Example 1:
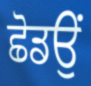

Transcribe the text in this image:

ਛੋਡਉਂ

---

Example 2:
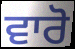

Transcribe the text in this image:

ਵਾਰੋ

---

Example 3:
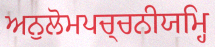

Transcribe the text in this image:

ਅਨੁਲੋਮਪਚ੍ਚਨੀਯਮ੍ਹਿ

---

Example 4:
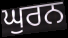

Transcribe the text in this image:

ਘੁਰਨ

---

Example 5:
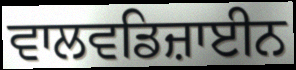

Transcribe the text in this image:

ਵਾਲਵਡਿਜ਼ਾਈਨ